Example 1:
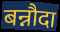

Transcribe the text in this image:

बन्नौदा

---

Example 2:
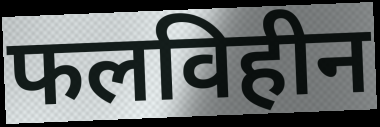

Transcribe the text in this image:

फलविहीन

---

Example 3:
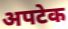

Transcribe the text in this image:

अपटेक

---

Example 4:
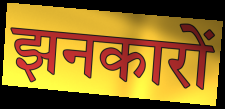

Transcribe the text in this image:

झनकारों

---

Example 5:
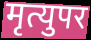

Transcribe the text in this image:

मृत्युपर